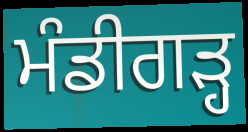
ਮੰਡੀਗੜ੍ਹ